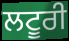
ਲਟੂਰੀ